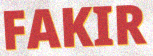
FAKIR